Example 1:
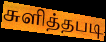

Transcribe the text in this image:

சுளித்தபடி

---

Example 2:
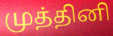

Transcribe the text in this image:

முத்தினி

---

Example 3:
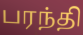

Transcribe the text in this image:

பரந்தி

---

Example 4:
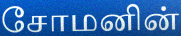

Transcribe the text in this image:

சோமனின்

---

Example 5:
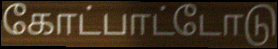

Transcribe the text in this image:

கோட்பாட்டோடு